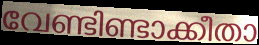
വേണ്ടിണ്ടാക്കീതാ